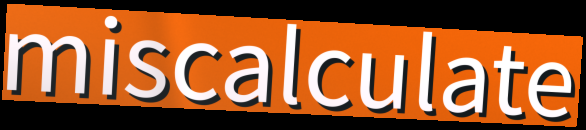
miscalculate